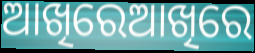
ଆଖିରେଆଖିରେ